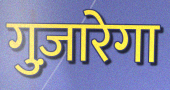
गुज़ारेगा